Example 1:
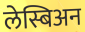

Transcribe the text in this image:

लेस्बिअन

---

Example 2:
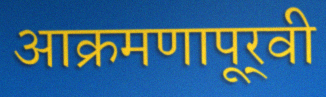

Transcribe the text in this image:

आक्रमणापूर्वी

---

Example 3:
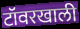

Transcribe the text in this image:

टॉवरखाली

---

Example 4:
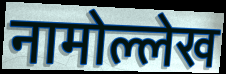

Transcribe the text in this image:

नामोल्लेख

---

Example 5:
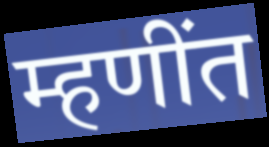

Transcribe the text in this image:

म्हणींत